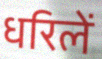
धरिलें